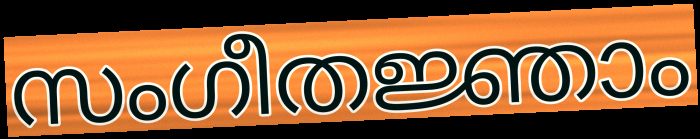
സംഗീതജ്ഞാം